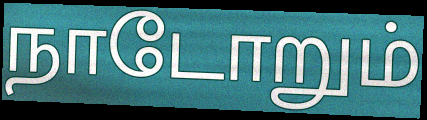
நாடோறும்